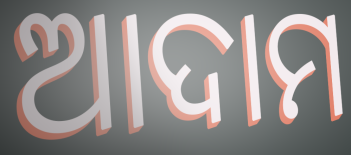
ଆଦାମ